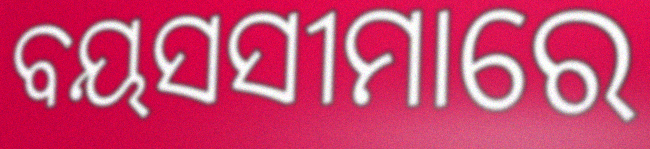
ବୟସସୀମାରେ